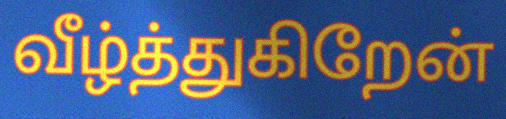
வீழ்த்துகிறேன்